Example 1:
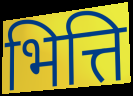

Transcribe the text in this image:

भित्ति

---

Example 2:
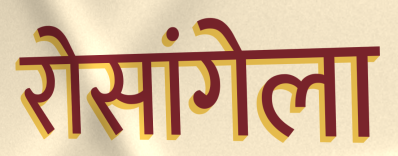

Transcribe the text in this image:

रोसांगेला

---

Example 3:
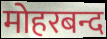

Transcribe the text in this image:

मोहरबन्द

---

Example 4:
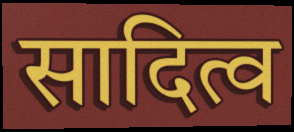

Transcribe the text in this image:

सादित्व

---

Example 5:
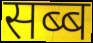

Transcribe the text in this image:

सब्ब